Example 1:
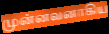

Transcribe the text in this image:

முன்னவனாகிய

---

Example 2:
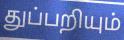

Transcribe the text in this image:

துப்பறியும்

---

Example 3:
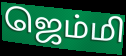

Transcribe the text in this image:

ஜெம்மி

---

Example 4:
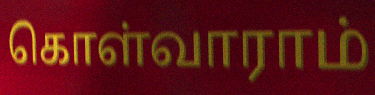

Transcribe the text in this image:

கொள்வாராம்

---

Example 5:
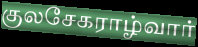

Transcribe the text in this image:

குலசேகராழ்வார்